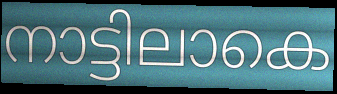
നാട്ടിലാകെ